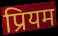
प्रियम